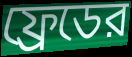
ফ্রেডের